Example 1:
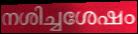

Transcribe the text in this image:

നശിച്ചശേഷം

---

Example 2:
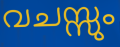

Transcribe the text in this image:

വചസ്സും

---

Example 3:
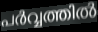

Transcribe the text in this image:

പർവ്വത്തിൽ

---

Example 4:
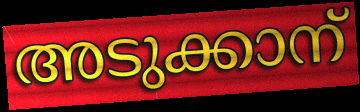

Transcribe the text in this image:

അടുക്കാന്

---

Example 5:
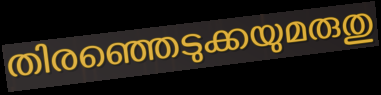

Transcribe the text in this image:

തിരഞ്ഞെടുക്കയുമരുതു